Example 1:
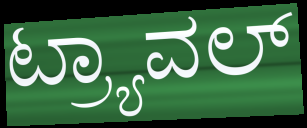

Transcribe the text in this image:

ಟ್ರ್ಯಾವಲ್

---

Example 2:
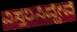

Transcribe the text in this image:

ವಿಸ್ತರಿಸಿದ್ದೇವೆ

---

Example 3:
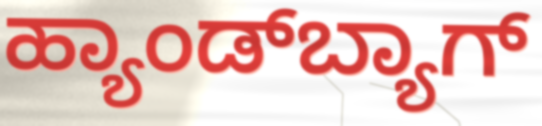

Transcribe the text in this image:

ಹ್ಯಾಂಡ್‌ಬ್ಯಾಗ್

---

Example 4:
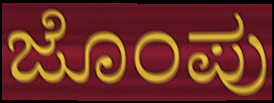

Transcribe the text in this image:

ಜೊಂಪು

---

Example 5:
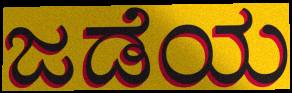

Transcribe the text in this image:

ಜಡೆಯ